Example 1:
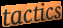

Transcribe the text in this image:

tactics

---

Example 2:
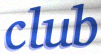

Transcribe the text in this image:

club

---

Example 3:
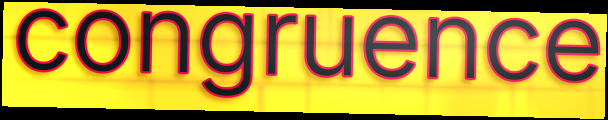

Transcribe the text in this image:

congruence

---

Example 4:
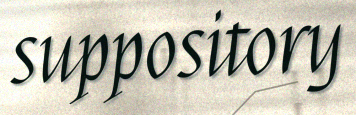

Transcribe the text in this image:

suppository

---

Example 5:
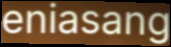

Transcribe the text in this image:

eniasang